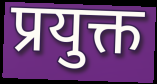
प्रयुक्त